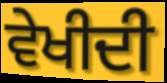
ਵੇਖੀਦੀ